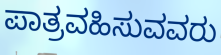
ಪಾತ್ರವಹಿಸುವವರು